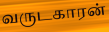
வருடகாரன்